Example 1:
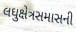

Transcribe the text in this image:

લઘુક્ષેત્રસમાસની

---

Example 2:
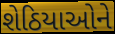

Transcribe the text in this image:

શેઠિયાઓને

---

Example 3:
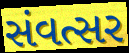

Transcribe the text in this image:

સંવત્સર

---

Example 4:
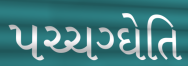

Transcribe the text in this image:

પચ્ચગ્ઘેતિ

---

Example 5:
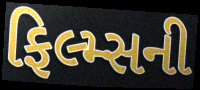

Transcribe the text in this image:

ફિલ્મ્સની